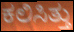
ಕಲಿಸಿತ್ತು